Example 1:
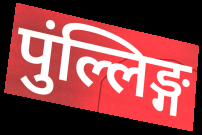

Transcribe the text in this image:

पुंल्लिङ्ग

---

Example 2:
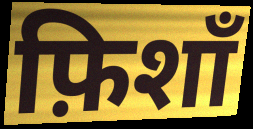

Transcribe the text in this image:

फ़िशाँ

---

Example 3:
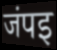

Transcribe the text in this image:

जंपइ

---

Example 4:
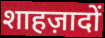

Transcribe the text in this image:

शाहज़ादों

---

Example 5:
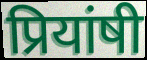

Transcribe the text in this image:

प्रियांषी